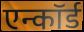
एन्कॉर्ड